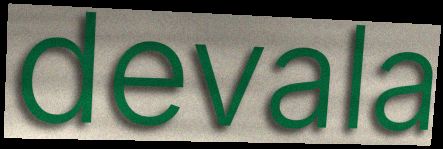
devala